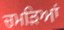
ਚਮੜਿਆਂ